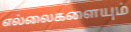
எல்லைகளையும்